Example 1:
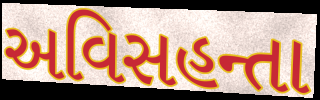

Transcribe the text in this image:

અવિસહન્તા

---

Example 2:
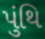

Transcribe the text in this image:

પુંથિ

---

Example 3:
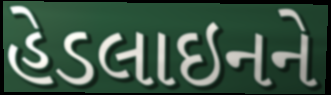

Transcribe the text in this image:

હેડલાઇનને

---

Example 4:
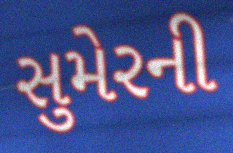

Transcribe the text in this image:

સુમેરની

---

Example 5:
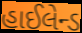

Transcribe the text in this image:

હાઈલેન્ડ